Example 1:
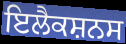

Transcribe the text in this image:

ਇਲੈਕਸ਼ਨਸ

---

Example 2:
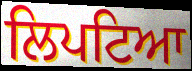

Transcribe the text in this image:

ਲਿਪਟਿਆ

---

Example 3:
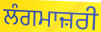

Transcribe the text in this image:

ਲੰਗਮਾਜ਼ਰੀ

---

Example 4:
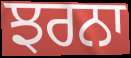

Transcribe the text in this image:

ਝਰਨਾ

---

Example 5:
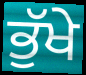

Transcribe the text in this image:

ਭੁੱਖੇ